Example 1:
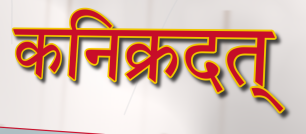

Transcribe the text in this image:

कनिक्रदत्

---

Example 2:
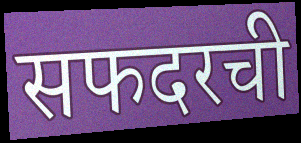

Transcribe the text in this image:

सफदरची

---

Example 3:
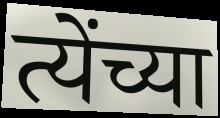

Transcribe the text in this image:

त्येंच्या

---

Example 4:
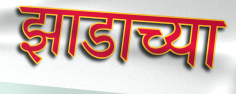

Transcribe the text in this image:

झाडाच्या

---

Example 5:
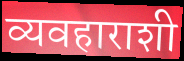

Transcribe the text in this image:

व्यवहाराशी